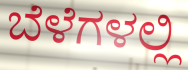
ಬೆಳೆಗಳಲ್ಲಿ